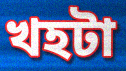
খহটা